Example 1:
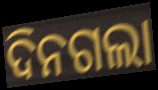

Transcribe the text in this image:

ଦିନଗଲା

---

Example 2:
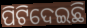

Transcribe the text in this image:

ପିଟିଦେଇଛି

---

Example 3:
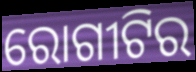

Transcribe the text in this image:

ରୋଗୀଟିର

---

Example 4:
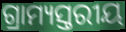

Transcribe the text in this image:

ଗ୍ରାମ୍ୟସ୍ତରୀୟ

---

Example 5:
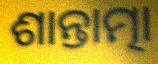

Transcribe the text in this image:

ଶାନ୍ତାତ୍ମା